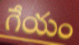
గేయం